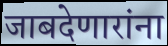
जाबदेणारांना